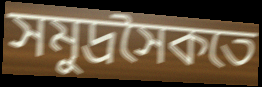
সমুদ্রসৈকতে